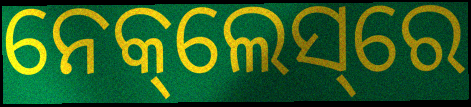
ନେକ୍‌ଲେସ୍‌ରେ